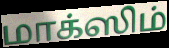
மாக்ஸிம்